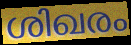
ശിഖരം